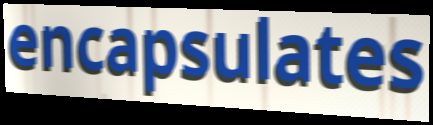
encapsulates